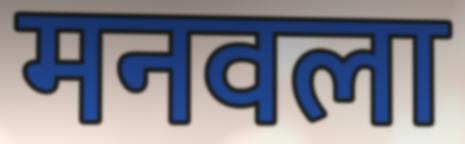
मनवला